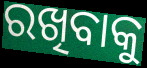
ରଖିବାକୁ